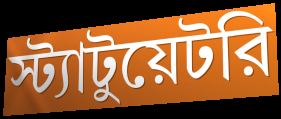
স্ট্যাটুয়েটরি